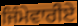
ਜਿੰਮੇਵਾਰੀਏ